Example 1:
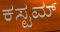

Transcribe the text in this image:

ಕಸ್ಟಮ್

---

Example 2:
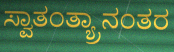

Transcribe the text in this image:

ಸ್ವಾತಂತ್ಯ್ರಾನಂತರ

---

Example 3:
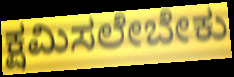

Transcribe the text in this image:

ಕ್ಷಮಿಸಲೇಬೇಕು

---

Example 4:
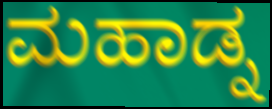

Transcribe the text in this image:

ಮಹಾಡ್ನ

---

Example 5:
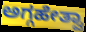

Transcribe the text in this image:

ಅಗ್ಗಹೇತ್ವಾ